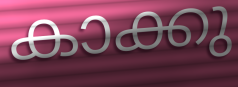
കാക്കു